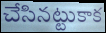
చేసినట్టుకాక